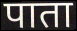
पाता